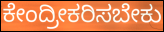
ಕೇಂದ್ರೀಕರಿಸಬೇಕು